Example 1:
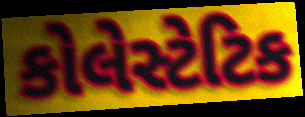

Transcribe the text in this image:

કોલેસ્ટેટિક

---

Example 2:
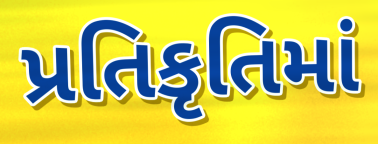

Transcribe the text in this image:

પ્રતિકૃતિમાં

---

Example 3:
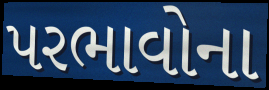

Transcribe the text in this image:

પરભાવોના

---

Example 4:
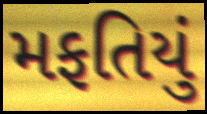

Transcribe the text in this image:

મફતિયું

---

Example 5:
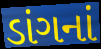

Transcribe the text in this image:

ડાંગનાં